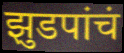
झुडपांचं